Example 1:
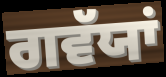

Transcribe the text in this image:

ਗਵੱਯਾਂ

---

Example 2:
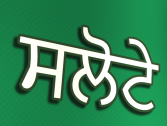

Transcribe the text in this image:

ਸਲੋਟੇ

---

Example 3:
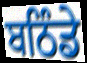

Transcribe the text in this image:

ਬਠਿੰਡੇ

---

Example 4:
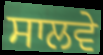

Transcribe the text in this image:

ਸਾਲਵੇ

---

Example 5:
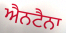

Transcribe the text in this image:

ਐਨਟੈਨਾ